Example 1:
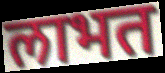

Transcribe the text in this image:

लाभत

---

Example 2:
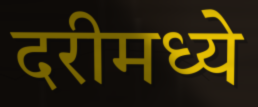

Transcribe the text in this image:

दरीमध्ये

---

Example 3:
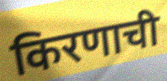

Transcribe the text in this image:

किरणाची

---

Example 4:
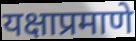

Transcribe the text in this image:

यक्षाप्रमाणे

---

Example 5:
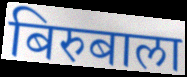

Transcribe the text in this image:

बिरुबाला